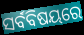
ସର୍ବବିଷୟରେ